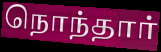
நொந்தார்